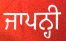
ਜਾਪਨ੍ਹੀ